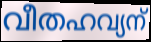
വീതഹവ്യന്